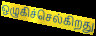
ஒழுகிச்செல்கிறது